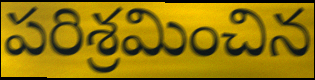
పరిశ్రమించిన